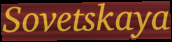
Sovetskaya